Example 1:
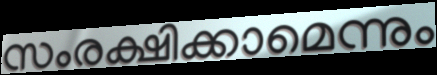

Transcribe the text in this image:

സംരക്ഷിക്കാമെന്നും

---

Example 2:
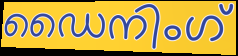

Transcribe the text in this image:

ഡൈനിംഗ്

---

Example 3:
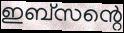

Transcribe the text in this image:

ഇബ്സന്റെ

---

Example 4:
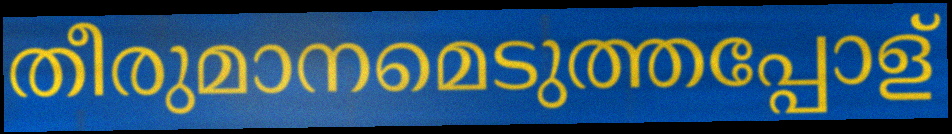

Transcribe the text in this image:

തീരുമാനമെടുത്തപ്പോള്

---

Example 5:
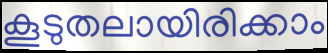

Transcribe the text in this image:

കൂടുതലായിരിക്കാം